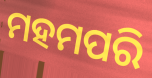
ମହମପରି